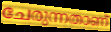
ചേരുന്നതാണ്